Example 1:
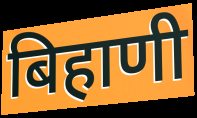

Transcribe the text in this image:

बिहाणी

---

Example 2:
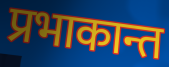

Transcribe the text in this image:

प्रभाकान्त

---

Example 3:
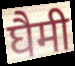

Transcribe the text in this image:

घैमी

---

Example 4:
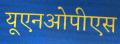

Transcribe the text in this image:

यूएनओपीएस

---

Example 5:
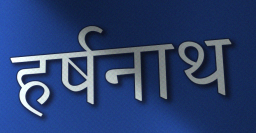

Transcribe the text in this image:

हर्षनाथ